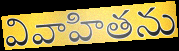
వివాహితను